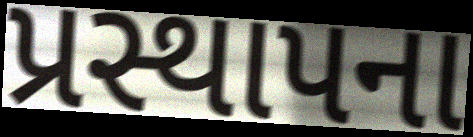
પ્રસ્થાપના